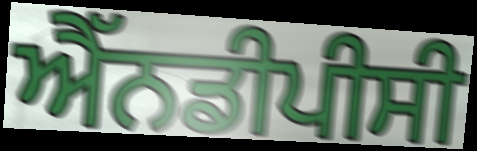
ਐੱਨਡੀਪੀਸੀ